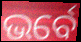
ଭର୍ବେ